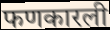
फणकारली